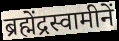
ब्रह्मेंद्रस्वामीनें